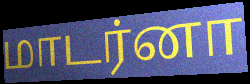
மாடர்னா